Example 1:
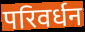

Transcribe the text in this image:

परिवर्धन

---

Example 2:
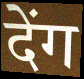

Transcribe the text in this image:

देंग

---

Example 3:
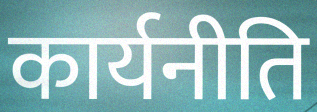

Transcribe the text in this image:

कार्यनीति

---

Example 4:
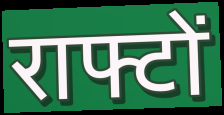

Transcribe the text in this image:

राफ्टों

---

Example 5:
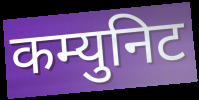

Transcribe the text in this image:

कम्युनिट